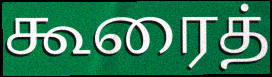
கூரைத்